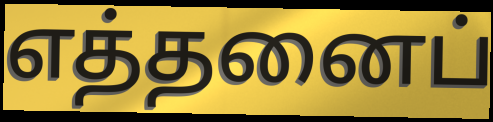
எத்தனைப்